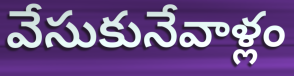
వేసుకునేవాళ్లం